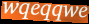
wqeqqwe